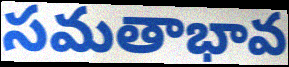
సమతాభావ